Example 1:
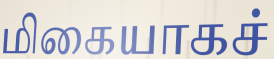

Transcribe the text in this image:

மிகையாகச்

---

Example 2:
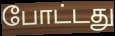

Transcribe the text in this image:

போட்டது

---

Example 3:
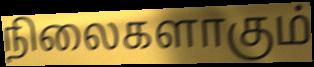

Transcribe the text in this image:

நிலைகளாகும்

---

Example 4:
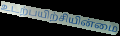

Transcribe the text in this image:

உடற்பயிற்சியின்மை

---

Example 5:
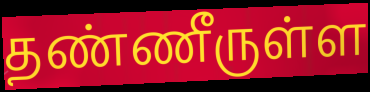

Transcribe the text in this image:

தண்ணீருள்ள